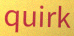
quirk